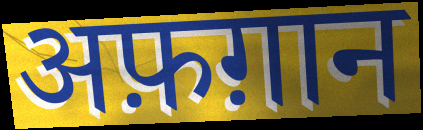
अफ़ग़ान